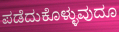
ಪಡೆದುಕೊಳ್ಳುವುದೂ